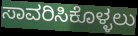
ಸಾವರಿಸಿಕೊಳ್ಳಲು